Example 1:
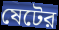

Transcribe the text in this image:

ষেটের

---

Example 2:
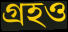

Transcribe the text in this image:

গ্রহও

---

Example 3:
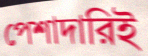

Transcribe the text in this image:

পেশাদারিই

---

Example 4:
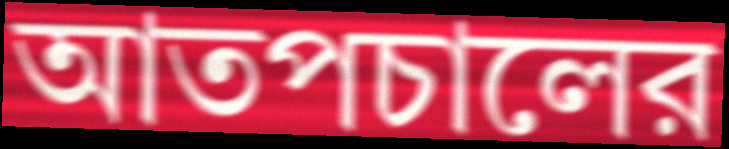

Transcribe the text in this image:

আতপচালের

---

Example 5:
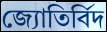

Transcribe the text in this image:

জ্যোতির্বিদ